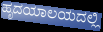
ಹೃದಯಾಲಯದಲ್ಲಿ